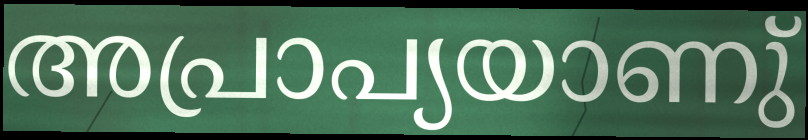
അപ്രാപ്യയാണു്